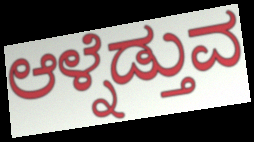
ಆಳ್ನೆಡ್ತುವ